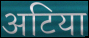
अटिया